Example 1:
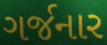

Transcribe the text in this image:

ગર્જનાર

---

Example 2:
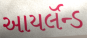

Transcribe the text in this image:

આયર્લૅન્ડ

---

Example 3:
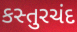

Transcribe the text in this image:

કસ્તુરચંદ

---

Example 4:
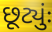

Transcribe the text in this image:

છૂટ્યુંઃ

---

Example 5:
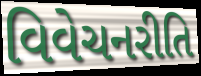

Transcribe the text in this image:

વિવેચનરીતિ